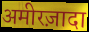
अमीरज़ादा